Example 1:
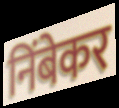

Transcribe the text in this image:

निंबेकर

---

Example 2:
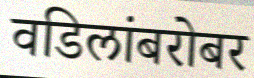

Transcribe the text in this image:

वडिलांबरोबर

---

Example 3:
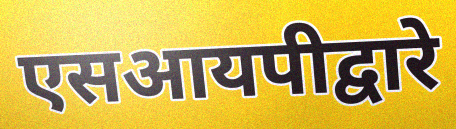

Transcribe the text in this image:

एसआयपीद्वारे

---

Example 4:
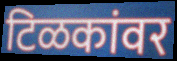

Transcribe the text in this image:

टिळकांवर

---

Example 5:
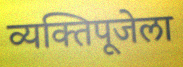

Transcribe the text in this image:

व्यक्तिपूजेला